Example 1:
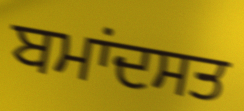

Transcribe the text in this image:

ਬਮਾਂਦਸਤ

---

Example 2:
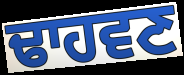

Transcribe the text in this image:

ਢਾਹਵਣ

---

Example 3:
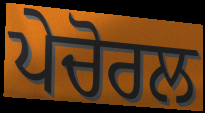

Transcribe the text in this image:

ਪੇਚੋਰਲ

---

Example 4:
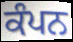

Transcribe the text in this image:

ਕੰਪਨ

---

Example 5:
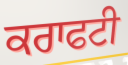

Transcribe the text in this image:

ਕਰਾਫਟੀ